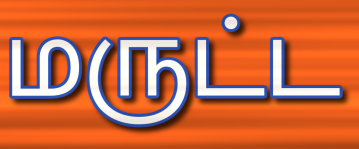
மருட்ட